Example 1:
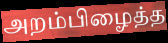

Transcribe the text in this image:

அறம்பிழைத்த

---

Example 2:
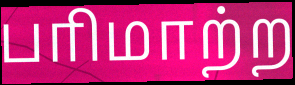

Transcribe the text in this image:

பரிமாற்ற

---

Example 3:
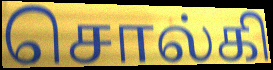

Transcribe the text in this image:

சொல்கி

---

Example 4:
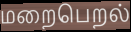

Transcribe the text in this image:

மறைபெறல்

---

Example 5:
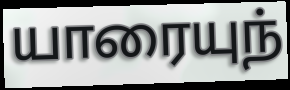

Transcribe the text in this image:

யாரையுந்